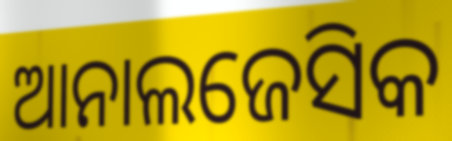
ଆନାଲଜେସିକ